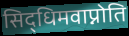
सिद्धिमवाप्नोति